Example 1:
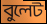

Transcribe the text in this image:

বুলেট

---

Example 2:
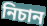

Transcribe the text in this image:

নিচান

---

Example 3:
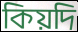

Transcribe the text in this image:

কিয়দি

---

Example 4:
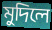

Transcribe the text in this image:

মুদিলে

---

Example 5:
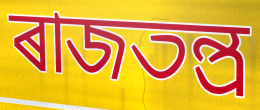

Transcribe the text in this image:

ৰাজতন্ত্ৰ